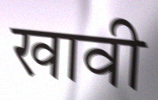
खावी